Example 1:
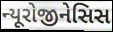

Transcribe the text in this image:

ન્યૂરોજીનેસિસ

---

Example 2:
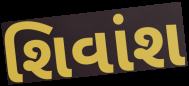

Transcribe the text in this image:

શિવાંશ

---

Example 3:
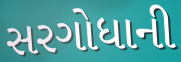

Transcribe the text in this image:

સરગોધાની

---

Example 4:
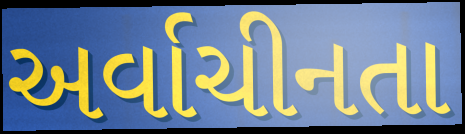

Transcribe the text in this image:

અર્વાચીનતા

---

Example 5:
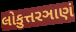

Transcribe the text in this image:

લોકુત્તરઞાણં